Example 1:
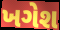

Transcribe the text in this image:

ખગેશ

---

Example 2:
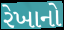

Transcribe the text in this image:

રેખાનો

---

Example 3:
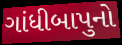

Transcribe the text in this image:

ગાંધીબાપુનો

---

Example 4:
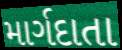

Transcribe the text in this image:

માર્ગદાતા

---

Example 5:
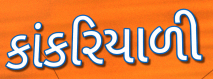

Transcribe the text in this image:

કાંકરિયાળી